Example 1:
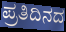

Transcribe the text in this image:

ಪ್ರತಿದಿನದ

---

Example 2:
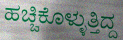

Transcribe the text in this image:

ಹಚ್ಚಿಕೊಳ್ಳುತ್ತಿದ್ದ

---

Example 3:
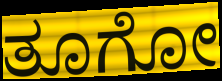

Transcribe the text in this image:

ತೂಗೋ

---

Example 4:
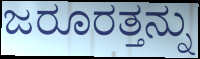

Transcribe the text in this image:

ಜರೂರತ್ತನ್ನು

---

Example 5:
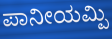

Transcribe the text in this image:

ಪಾನೀಯಮ್ಪಿ